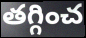
తగ్గించ